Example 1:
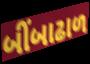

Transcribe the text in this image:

બીંબાઢાળ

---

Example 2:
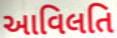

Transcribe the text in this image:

આવિલતિ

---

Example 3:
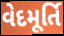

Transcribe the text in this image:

વેદમૂર્તિ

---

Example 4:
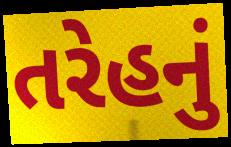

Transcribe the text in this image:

તરેહનું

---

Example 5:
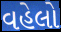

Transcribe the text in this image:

વહેલો